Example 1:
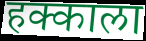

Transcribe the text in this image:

हक्काला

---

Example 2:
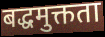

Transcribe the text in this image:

बद्धमुक्तता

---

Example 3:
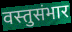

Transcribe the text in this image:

वस्तुसंभार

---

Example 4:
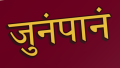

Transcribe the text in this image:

जुनंपानं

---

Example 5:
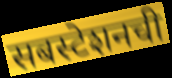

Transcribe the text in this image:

सबस्टेशनची